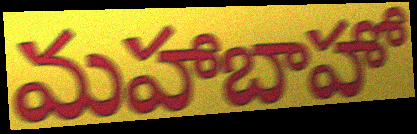
మహాబాహో